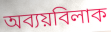
অব্যয়বিলাক